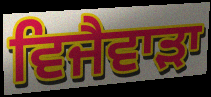
ਵਿਜੈਵਾੜਾ